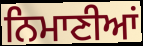
ਨਿਮਾਣੀਆਂ